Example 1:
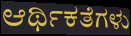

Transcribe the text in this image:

ಆರ್ಥಿಕತೆಗಳು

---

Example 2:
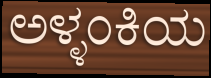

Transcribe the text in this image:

ಅಳ್ಳಂಕಿಯ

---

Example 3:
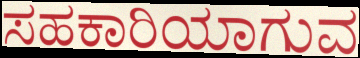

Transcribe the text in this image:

ಸಹಕಾರಿಯಾಗುವ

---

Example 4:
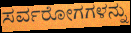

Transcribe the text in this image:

ಸರ್ವರೋಗಗಳನ್ನು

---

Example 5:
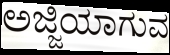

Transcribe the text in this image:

ಅಜ್ಜಿಯಾಗುವ